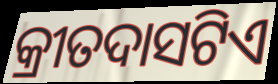
କ୍ରୀତଦାସଟିଏ